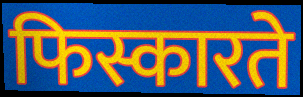
फिस्कारते